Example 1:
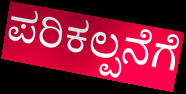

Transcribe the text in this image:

ಪರಿಕಲ್ಪನೆಗೆ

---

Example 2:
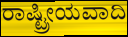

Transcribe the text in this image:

ರಾಷ್ಟ್ರೀಯವಾದಿ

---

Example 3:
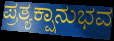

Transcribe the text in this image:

ಪ್ರತ್ಯಕ್ಷಾನುಭವ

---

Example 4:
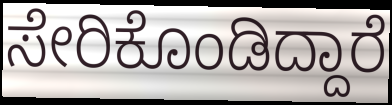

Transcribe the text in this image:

ಸೇರಿಕೊಂಡಿದ್ದಾರೆ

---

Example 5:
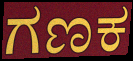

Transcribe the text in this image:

ಗಣಕ